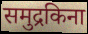
समुद्रकिना